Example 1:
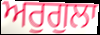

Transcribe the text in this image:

ਅਰੁਗੁਲਾ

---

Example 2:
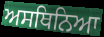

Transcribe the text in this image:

ਅਸਥਿਨਿਆ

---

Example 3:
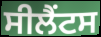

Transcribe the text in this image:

ਸੀਲੈਂਟਸ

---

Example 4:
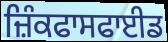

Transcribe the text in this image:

ਜ਼ਿੰਕਫਾਸਫਾਈਡ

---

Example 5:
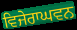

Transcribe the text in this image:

ਵਿਜੇਰਾਘਵਨ